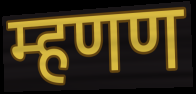
म्हणण